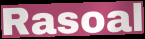
Rasoal